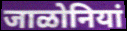
जाळोनियां